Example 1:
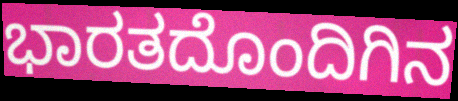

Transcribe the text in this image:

ಭಾರತದೊಂದಿಗಿನ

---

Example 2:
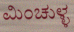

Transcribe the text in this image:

ಮಿಂಚುಳ್ಳ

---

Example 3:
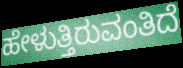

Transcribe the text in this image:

ಹೇಳುತ್ತಿರುವಂತಿದೆ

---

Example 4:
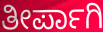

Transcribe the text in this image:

ತೀರ್ಪಾಗಿ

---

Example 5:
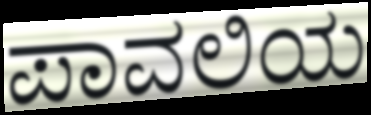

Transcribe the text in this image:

ಪಾವಲಿಯ